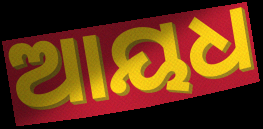
ଆୟଧ